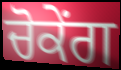
ਚੋਕੇਂਗ